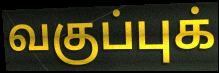
வகுப்புக்